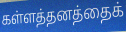
கள்ளத்தனத்தைக்